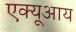
एक्यूआय